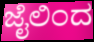
ಜೈಲಿಂದ